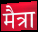
मैत्रा